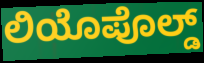
ಲಿಯೊಪೊಲ್ಡ್